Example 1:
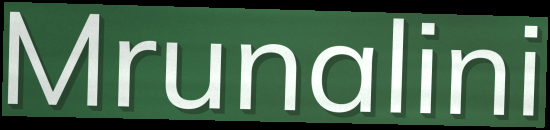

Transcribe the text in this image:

Mrunalini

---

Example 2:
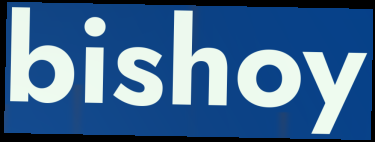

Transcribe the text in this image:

bishoy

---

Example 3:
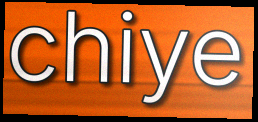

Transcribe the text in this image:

chiye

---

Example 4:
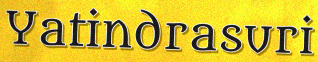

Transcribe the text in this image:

Yatindrasuri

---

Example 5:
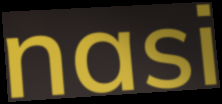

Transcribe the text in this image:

nasi